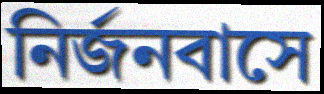
নির্জনবাসে